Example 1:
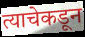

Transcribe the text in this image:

त्याचेकडून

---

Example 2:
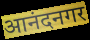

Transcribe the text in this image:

आनंदनगर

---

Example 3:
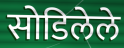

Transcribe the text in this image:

सोडिलेले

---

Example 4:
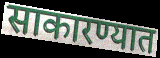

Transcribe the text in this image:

साकारण्यात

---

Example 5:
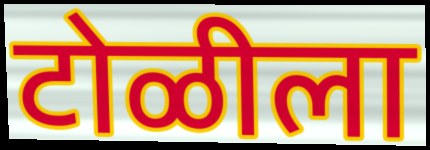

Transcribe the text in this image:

टोळीला